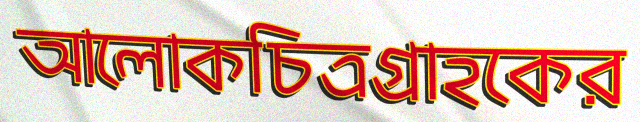
আলোকচিত্রগ্রাহকের